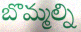
బొమ్మల్ని